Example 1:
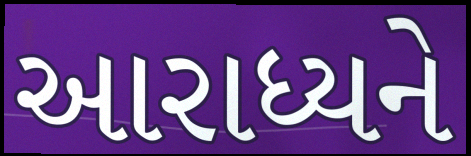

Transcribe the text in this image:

આરાધ્યને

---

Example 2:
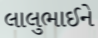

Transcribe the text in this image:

લાલુભાઈને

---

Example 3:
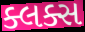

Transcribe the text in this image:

ક્લક્સ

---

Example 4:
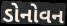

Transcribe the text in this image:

ડોનોવન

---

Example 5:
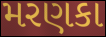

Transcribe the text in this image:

મરણકા